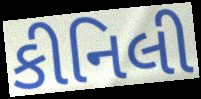
કીનિલી